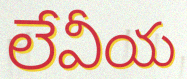
లేవీయ